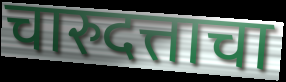
चारुदत्ताचा